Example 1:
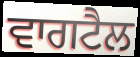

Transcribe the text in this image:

ਵਾਗਟੈਲ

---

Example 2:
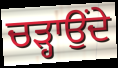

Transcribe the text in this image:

ਚੜ੍ਹਾਉਂਦੇ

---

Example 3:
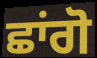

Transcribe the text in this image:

ਛਾਂਗੋ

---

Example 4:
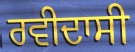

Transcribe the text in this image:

ਰਵੀਦਾਸੀ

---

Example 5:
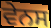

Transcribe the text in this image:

ਵੇਨਸ